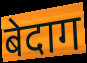
बेदाग